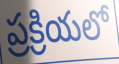
ప్రక్రియలో